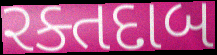
રક્તદાબ